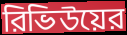
রিভিউয়ের